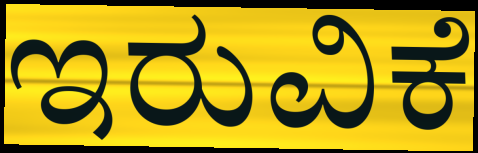
ಇರುವಿಕೆ